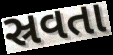
સ્રવતા